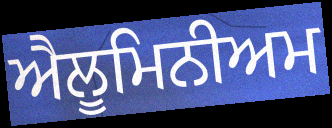
ਐਲੂਮਿਨੀਅਮ